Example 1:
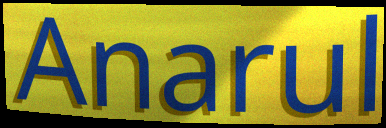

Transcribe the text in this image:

Anarul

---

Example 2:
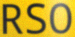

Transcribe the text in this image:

RSO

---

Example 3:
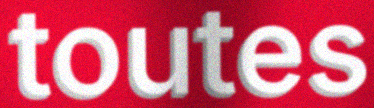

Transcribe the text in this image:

toutes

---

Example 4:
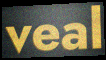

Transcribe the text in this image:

veal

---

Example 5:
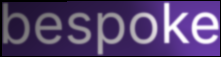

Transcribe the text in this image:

bespoke